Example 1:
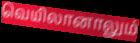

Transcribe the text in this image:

வெயிலானாலும்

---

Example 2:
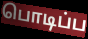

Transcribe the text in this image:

பொடிப்ப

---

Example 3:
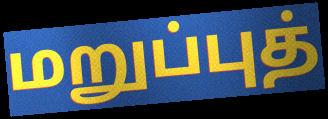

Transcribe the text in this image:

மறுப்புத்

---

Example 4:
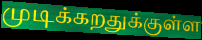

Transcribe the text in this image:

முடிக்கறதுக்குள்ள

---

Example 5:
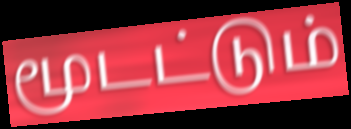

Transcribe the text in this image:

மூடட்டும்